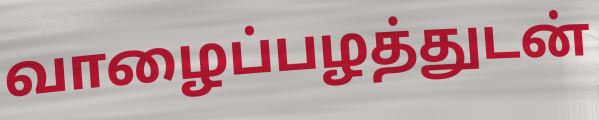
வாழைப்பழத்துடன்